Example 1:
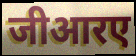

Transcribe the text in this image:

जीआरए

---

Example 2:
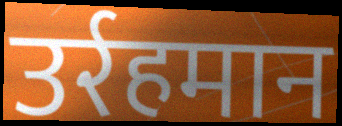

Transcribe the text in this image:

उर्रहमान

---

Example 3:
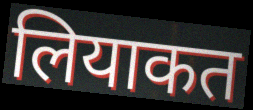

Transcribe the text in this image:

लियाकत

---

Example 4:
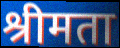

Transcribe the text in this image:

श्रीमता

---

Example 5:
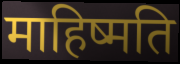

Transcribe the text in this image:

माहिष्मति